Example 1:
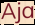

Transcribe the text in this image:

Aja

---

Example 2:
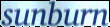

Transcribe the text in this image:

sunburn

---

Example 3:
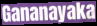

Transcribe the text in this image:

Gananayaka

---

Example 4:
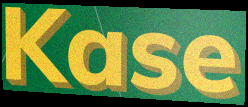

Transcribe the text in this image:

Kase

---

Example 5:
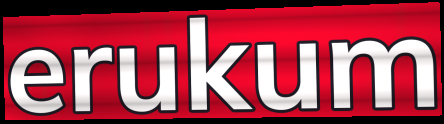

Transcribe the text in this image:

erukum